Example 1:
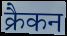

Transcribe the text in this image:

क्रैकन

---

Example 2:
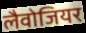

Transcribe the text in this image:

लैवोजियर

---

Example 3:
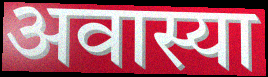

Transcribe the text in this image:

अवास्या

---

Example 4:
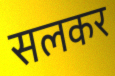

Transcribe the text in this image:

सलकर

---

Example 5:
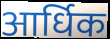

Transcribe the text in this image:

आर्धिक